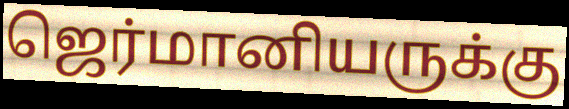
ஜெர்மானியருக்கு